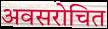
अवसरोचित